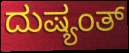
ದುಷ್ಯಂತ್